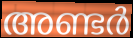
അണ്ടർ